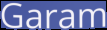
Garam